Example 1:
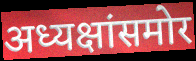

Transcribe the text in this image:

अध्यक्षांसमोर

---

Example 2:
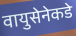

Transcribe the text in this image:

वायुसेनेकडे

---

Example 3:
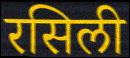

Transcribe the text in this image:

रसिली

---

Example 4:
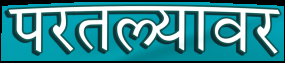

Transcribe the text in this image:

परतल्यावर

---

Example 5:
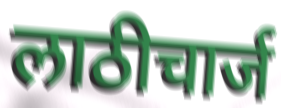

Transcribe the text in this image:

लाठीचार्ज